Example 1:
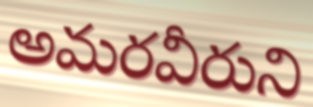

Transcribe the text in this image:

అమరవీరుని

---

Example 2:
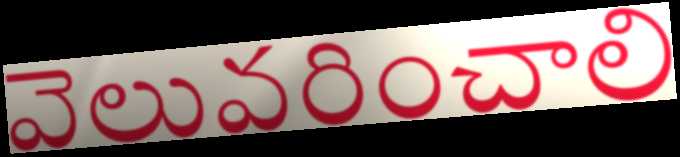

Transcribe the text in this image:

వెలువరించాలి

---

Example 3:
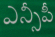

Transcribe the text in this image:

ఎన్సీపీ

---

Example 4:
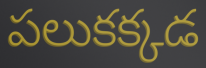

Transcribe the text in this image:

పలుకక్కడ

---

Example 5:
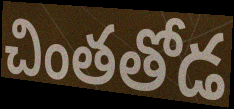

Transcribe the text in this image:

చింతతోడ